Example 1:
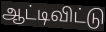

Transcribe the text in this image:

ஆட்டிவிட்டு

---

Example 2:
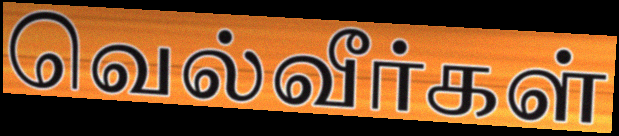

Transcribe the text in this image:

வெல்வீர்கள்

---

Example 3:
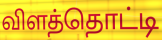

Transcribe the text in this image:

விளத்தொட்டி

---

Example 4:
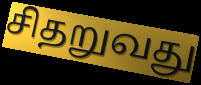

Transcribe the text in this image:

சிதறுவது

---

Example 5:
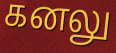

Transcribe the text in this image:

கனலு